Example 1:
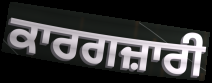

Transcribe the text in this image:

ਕਾਰਗਜ਼ਾਰੀ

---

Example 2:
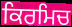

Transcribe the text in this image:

ਕਿਰਮਿਚ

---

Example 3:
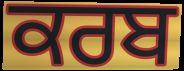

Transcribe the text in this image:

ਕਰਬ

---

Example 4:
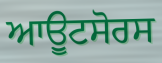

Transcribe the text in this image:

ਆਉੂਟਸੋਰਸ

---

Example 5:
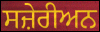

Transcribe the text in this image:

ਸਜ਼ੇਰੀਅਨ